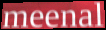
meenal